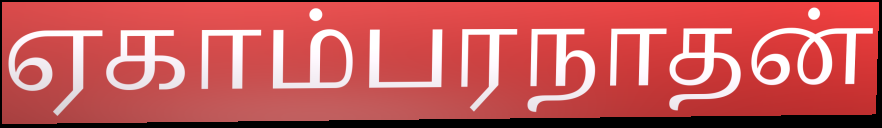
ஏகாம்பரநாதன்